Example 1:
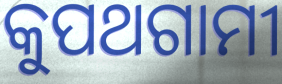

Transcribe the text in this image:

କୁପଥଗାମୀ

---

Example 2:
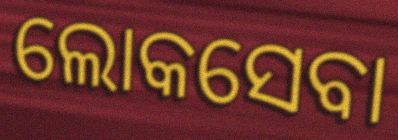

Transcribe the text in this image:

ଲୋକସେବା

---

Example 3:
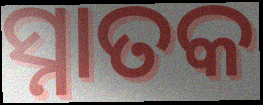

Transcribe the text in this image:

ସ୍ନାତକ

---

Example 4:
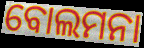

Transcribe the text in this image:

ବୋଲମନା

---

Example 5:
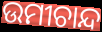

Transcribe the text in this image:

ଉମୀଚାନ୍ଦ